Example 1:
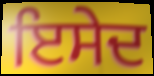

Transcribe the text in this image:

ਇਸੇਦ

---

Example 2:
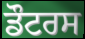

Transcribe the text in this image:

ਡੌਟਰਸ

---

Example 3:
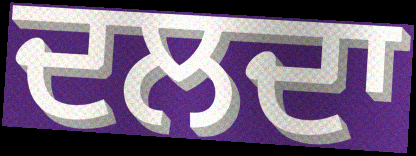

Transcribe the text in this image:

ਦਲਦਾ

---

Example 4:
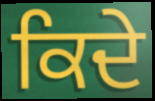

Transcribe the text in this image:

ਕਿਦੇ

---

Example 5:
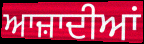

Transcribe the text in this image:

ਆਜ਼ਾਦੀਆਂ